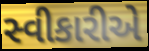
સ્વીકારીએ